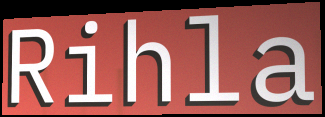
Rihla